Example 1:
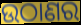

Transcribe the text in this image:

ଉଠାଣର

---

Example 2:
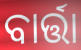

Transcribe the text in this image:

ବାର୍ତ୍ତା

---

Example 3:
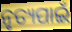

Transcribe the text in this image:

ନୃତ୍ୟପାଇଁ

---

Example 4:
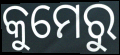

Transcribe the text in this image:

କୁମେରୁ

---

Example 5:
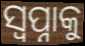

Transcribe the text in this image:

ସ୍ୱପ୍ନାକୁ